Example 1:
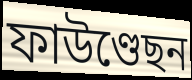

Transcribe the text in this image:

ফাউণ্ডেছন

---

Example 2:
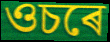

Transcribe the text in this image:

ওচৰে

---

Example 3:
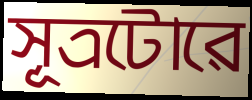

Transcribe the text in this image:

সূত্ৰটোৱে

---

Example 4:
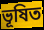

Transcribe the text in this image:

ভূষিত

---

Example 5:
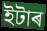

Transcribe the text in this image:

ইটাৰ